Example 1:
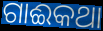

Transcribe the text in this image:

ଗାଈକଥା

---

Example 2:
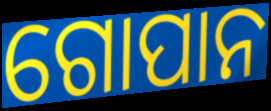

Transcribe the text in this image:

ଗୋପାନ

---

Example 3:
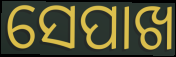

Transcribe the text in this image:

ସେପାଖ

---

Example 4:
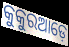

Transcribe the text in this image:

କୁକୁରଆଡ଼େ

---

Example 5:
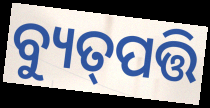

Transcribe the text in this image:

ବ୍ୟୁତ୍‌ପତ୍ତି